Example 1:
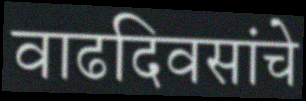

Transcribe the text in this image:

वाढदिवसांचे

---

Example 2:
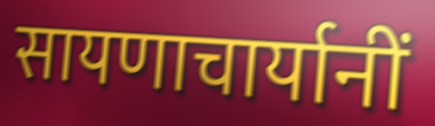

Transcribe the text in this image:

सायणाचार्यानीं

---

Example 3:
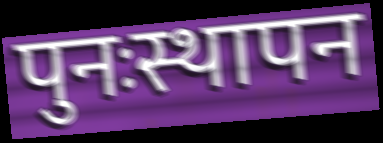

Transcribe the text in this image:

पुनःस्थापन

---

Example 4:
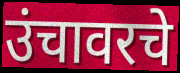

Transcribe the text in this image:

उंचावरचे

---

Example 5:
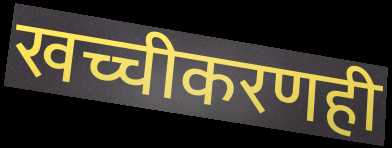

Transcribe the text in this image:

खच्चीकरणही